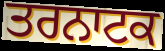
ਤਰਨਾਟਕ